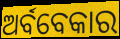
ଅର୍ବବେକାର